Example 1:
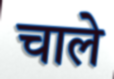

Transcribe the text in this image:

चाले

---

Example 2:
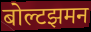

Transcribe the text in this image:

बोल्टझमन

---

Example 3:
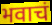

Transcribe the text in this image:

भवाचं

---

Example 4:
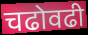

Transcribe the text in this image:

चढोवढी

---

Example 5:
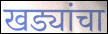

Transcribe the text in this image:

खड्यांचा